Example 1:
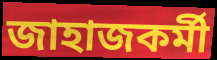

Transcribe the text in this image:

জাহাজকর্মী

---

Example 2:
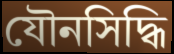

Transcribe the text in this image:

যৌনসিদ্ধি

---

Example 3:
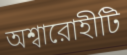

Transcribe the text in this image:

অশ্বারোহীটি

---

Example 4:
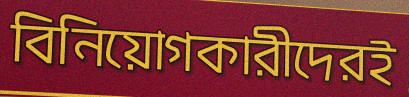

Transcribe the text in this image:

বিনিয়োগকারীদেরই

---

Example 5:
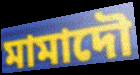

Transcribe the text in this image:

মামাদৌ